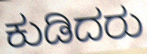
ಕುಡಿದರು